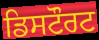
ਡਿਸਟੌਰਟ